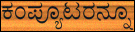
ಕಂಪ್ಯೂಟರನ್ನೂ